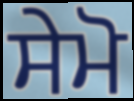
ਸੇਮੋ